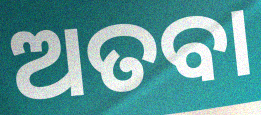
ଅତବା